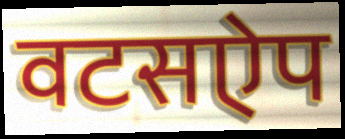
वटसऐप